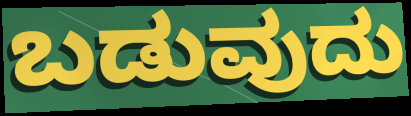
ಬಡುವುದು